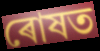
ৰোষত